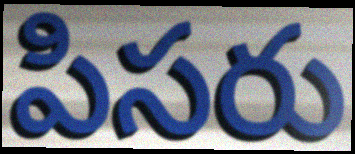
పిసరు